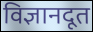
विज्ञानदूत